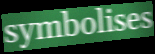
symbolises